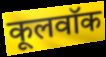
कूलवॉक